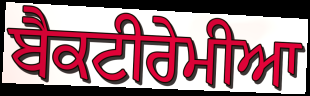
ਬੈਕਟੀਰੇਮੀਆ